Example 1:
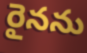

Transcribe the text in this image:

రైనను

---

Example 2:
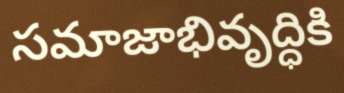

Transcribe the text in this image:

సమాజాభివృద్ధికి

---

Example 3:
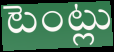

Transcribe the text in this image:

టెంట్లు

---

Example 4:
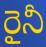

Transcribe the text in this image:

రైనీ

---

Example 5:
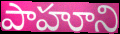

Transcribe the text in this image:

పాహూని